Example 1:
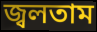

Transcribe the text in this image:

জ্বলতাম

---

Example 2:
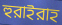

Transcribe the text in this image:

হুরাইরাহ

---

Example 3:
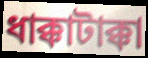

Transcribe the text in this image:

ধাক্কাটাক্কা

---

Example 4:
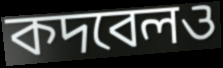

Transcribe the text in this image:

কদবেলও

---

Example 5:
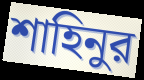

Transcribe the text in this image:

শাহিনুর